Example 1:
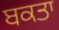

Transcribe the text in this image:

ਬਕਤਾ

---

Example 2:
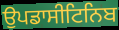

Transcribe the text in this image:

ਉਪਡਾਸੀਟਿਨਿਬ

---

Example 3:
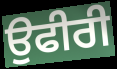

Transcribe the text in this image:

ਉਫੀਰੀ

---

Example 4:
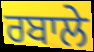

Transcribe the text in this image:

ਰਬਾਲੇ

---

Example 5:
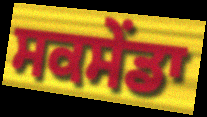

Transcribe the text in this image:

ਸਕਸੇਂਡਾ